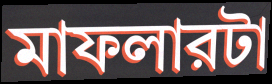
মাফলারটা